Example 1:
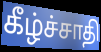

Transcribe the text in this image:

கீழ்ச்சாதி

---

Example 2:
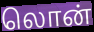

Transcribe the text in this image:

லொன்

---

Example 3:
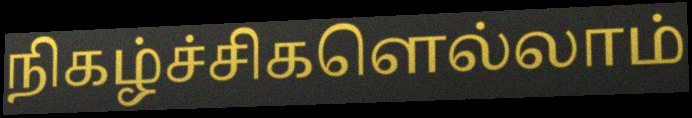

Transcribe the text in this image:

நிகழ்ச்சிகளெல்லாம்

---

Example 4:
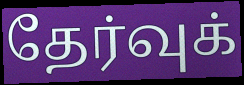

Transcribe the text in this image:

தேர்வுக்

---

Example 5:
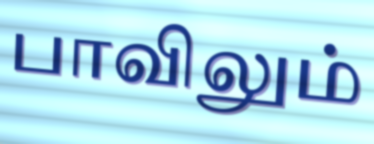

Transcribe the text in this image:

பாவிலும்